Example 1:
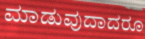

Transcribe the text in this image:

ಮಾಡುವುದಾದರೂ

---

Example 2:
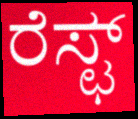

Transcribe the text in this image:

ರೆಸ್ಟ್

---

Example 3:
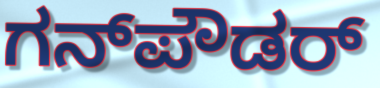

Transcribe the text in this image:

ಗನ್‌ಪೌಡರ್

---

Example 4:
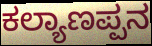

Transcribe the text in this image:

ಕಲ್ಯಾಣಪ್ಪನ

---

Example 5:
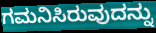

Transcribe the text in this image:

ಗಮನಿಸಿರುವುದನ್ನು